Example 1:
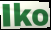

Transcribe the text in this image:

Iko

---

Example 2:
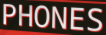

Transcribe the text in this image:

PHONES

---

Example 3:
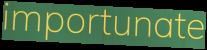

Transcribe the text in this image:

importunate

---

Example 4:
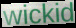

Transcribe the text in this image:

wickid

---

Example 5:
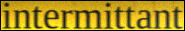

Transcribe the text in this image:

intermittant